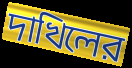
দাখিলের